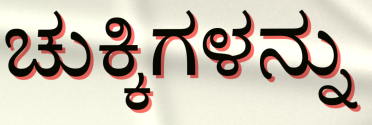
ಚುಕ್ಕಿಗಳನ್ನು